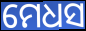
ମେଧସ